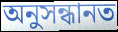
অনুসন্ধানত